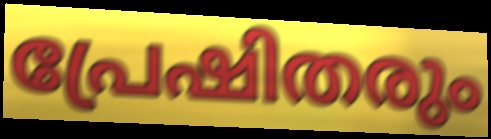
പ്രേഷിതരും